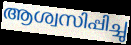
ആശ്വസിപ്പിച്ചു